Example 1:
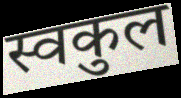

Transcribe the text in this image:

स्वकुल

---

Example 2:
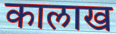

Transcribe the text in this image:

कालाख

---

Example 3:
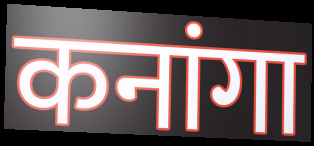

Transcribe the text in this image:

कनांगा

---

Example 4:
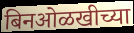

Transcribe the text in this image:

बिनओळखीच्या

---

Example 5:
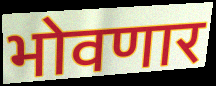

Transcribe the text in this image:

भोवणार